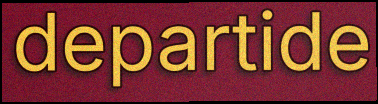
departide